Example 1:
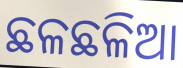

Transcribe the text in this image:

ଛଳଛଳିଆ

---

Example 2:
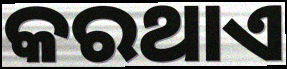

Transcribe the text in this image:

କରଥାଏ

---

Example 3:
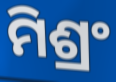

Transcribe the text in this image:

ମିଶ୍ରଂ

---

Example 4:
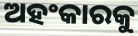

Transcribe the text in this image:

ଅହଂକାରକୁ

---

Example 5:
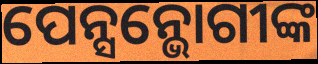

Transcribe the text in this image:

ପେନ୍ସନ୍ଭୋଗୀଙ୍କ